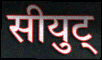
सीयुट्